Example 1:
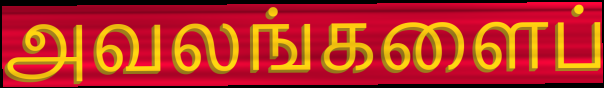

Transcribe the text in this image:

அவலங்களைப்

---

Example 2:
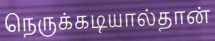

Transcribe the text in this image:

நெருக்கடியால்தான்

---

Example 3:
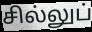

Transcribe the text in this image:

சில்லுப்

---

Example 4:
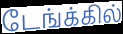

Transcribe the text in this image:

டேங்க்கில்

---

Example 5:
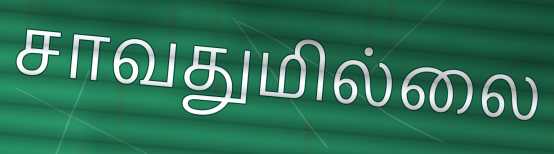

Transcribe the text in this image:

சாவதுமில்லை